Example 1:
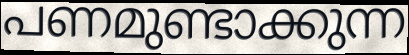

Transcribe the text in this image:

പണമുണ്ടാക്കുന്ന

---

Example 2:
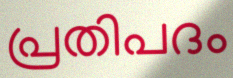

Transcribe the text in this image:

പ്രതിപദം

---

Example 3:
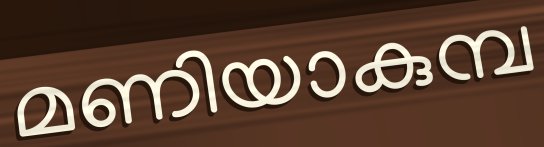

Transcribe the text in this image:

മണിയാകുമ്പ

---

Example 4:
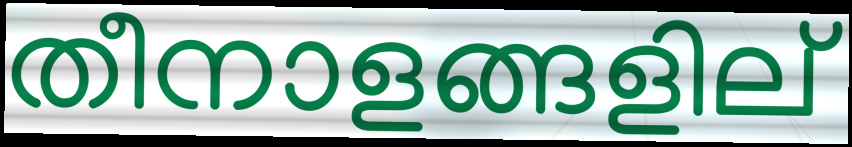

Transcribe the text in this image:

തീനാളങ്ങളില്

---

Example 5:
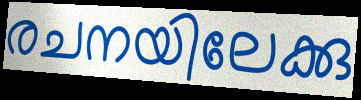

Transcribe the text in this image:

രചനയിലേക്കു